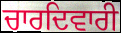
ਚਾਰਦਿਵਾਰੀ